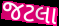
જટલા